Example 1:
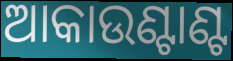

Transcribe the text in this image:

ଆକାଉଣ୍ଟାଣ୍ଟ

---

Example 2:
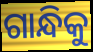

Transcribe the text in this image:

ଗାନ୍ଧିକୁ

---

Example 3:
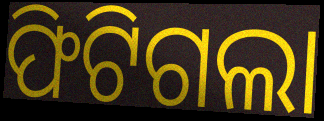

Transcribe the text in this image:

ଫିଟିଗଲା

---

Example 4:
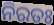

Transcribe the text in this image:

ନିରତଃ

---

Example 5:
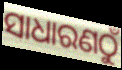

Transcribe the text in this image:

ସାଧାରଣଠୁଁ